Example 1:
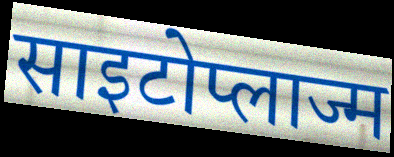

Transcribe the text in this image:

साइटोप्लाज्म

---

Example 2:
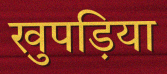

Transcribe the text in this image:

खुपड़िया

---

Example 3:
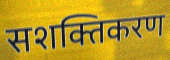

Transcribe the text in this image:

सशक्‍तिकरण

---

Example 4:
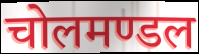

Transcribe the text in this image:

चोलमण्डल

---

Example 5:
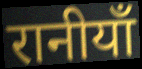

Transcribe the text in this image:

रानीयाँ